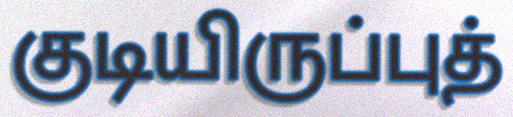
குடியிருப்புத்